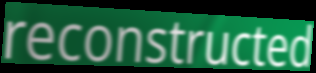
reconstructed